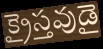
క్రైస్తవుడై